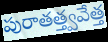
పురాతత్త్వవేత్త